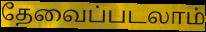
தேவைப்படலாம்